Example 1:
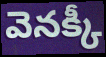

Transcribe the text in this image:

వెనక్కీ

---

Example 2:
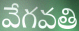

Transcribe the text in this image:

వేగవతి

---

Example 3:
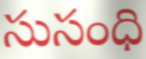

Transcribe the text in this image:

సుసంధి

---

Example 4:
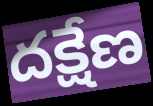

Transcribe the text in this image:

దక్షేణ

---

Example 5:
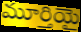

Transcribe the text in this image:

మూర్తియై